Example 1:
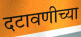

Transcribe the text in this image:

दटावणीच्या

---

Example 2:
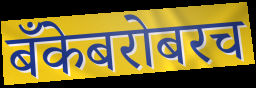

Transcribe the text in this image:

बँकेबरोबरच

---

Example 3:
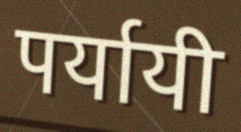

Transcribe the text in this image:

पर्यायी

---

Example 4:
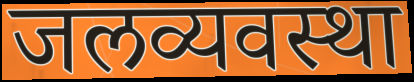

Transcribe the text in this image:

जलव्यवस्था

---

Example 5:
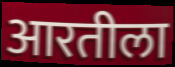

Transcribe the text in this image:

आरतीला